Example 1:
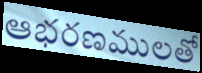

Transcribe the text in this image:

ఆభరణములతో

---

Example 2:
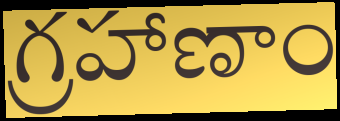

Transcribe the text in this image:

గ్రహాణాం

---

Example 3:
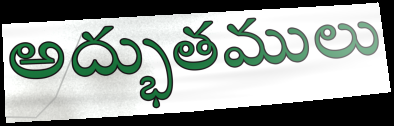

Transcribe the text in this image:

అద్భుతములు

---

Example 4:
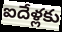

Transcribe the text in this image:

ఐదేళ్లకు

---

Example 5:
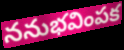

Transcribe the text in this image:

ననుభవింపక